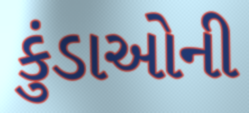
કુંડાઓની